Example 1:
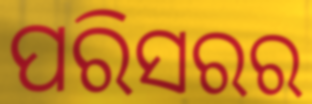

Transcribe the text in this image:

ପରିସରର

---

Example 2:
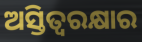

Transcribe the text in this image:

ଅସ୍ତିତ୍ୱରକ୍ଷାର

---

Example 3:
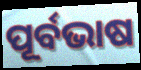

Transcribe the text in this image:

ପୂର୍ବଭାଷ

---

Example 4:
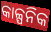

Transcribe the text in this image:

କାଳ୍ପନିକ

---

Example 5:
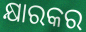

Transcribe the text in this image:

କ୍ଷାରକର